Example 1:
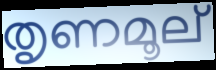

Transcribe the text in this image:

തൃണമൂല്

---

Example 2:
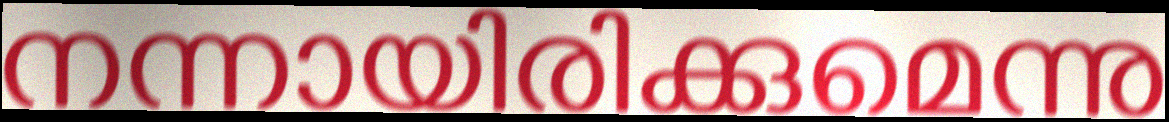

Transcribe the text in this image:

നന്നായിരിക്കുമെന്നു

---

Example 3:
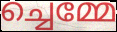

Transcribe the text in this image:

ച്ചെമ്മേ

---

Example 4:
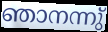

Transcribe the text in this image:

ഞാനന്നു്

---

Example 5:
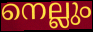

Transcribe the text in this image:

നെല്ലും